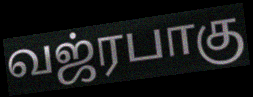
வஜ்ரபாகு